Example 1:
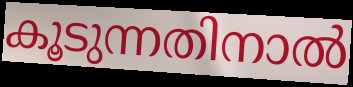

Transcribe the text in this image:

കൂടുന്നതിനാൽ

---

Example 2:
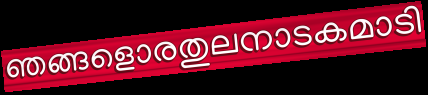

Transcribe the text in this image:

ഞങ്ങളൊരതുലനാടകമാടി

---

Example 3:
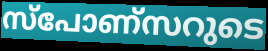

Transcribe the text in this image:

സ്പോണ്സറുടെ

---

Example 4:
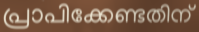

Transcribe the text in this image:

പ്രാപിക്കേണ്ടതിന്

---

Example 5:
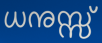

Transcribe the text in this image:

ധനുസ്സ്